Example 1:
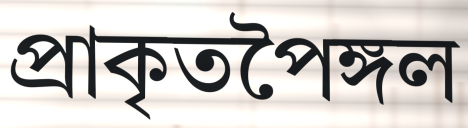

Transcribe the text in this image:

প্ৰাকৃতপৈঙ্গল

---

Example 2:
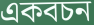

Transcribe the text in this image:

একবচন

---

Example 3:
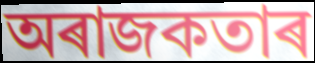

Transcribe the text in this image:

অৰাজকতাৰ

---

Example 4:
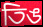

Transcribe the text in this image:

তিঙ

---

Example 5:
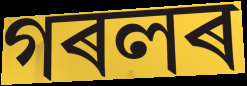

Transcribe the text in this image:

গৰলৰ